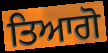
ਤਿਆਗੋ